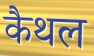
कैथल